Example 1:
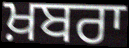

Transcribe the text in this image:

ਖ਼ਬਰਾ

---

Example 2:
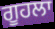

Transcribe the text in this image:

ਗੂਹਲਾ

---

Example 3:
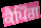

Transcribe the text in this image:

ਕੈਪਿੰਗ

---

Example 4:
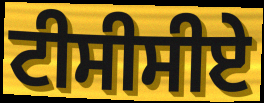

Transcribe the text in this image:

ਟੀਸੀਸੀਏ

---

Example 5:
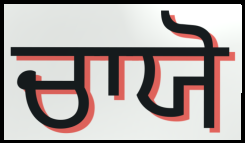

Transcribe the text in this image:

ਚਾਯੋ